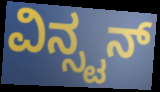
ವಿನ್ಸ್ಟನ್